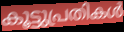
കൂട്ടുപ്രതികൾ